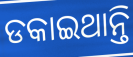
ଡକାଇଥାନ୍ତି